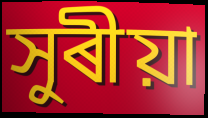
সুৰীয়া